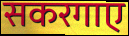
सकरगाए